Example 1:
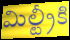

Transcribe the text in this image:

మిల్ట్రీకి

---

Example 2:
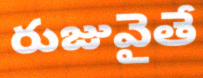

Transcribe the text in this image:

రుజువైతే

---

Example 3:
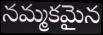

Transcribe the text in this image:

నమ్మకమైన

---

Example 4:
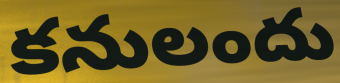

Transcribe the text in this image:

కనులందు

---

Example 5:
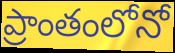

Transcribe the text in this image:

ప్రాంతంలోనో